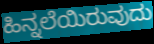
ಹಿನ್ನಲೆಯಿರುವುದು